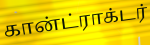
கான்ட்ராக்டர்